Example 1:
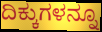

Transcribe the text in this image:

ದಿಕ್ಕುಗಳನ್ನೂ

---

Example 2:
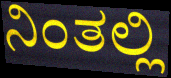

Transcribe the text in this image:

ನಿಂತಲ್ಲಿ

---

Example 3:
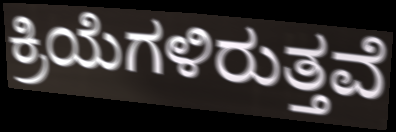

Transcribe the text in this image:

ಕ್ರಿಯೆಗಳಿರುತ್ತವೆ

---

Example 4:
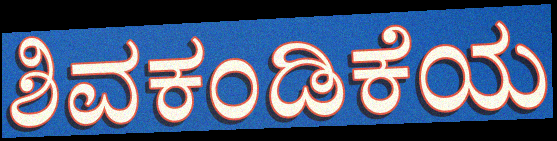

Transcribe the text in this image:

ಶಿವಕಂಡಿಕೆಯ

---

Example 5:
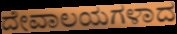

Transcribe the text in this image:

ದೇವಾಲಯಗಳಾದ